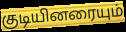
குடியினரையும்